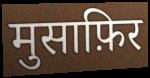
मुसाफ़िर